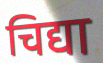
चिद्या